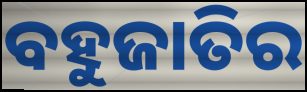
ବହୁଜାତିର